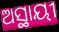
ଅସ୍ଥାୟୀ